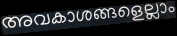
അവകാശങ്ങളെല്ലാം